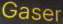
Gaser